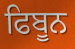
ਫਿਬੂਨ